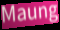
Maung